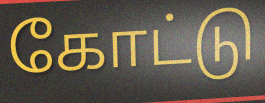
கோட்டு